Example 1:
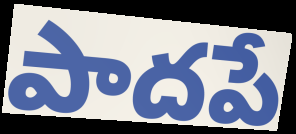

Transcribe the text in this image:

పాదపే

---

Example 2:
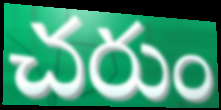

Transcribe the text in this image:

చరుం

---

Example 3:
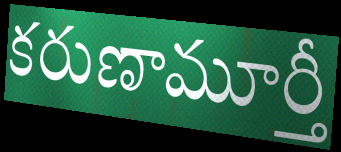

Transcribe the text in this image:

కరుణామూర్తీ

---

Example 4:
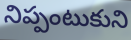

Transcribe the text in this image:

నిప్పంటుకుని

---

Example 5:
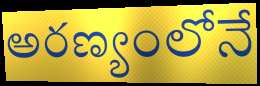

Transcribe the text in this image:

అరణ్యంలోనే